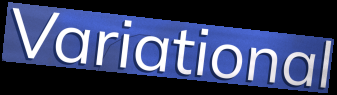
Variational